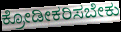
ಕ್ರೋಡೀಕರಿಸಬೇಕು